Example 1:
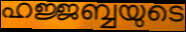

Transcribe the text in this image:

ഹജ്ജബ്ബയുടെ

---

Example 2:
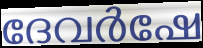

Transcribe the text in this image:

ദേവർഷേ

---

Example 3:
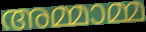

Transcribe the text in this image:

അമ്മാമ്മ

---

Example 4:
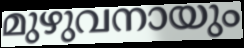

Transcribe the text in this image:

മുഴുവനായും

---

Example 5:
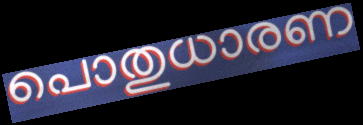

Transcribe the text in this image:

പൊതുധാരണ